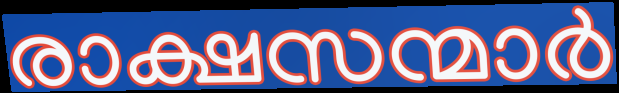
രാക്ഷസന്മാർ